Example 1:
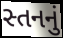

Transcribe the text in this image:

સ્તનનું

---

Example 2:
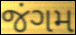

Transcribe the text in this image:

જંગમ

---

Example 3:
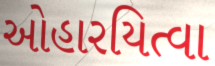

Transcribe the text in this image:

ઓહારયિત્વા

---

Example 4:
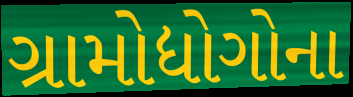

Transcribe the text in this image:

ગ્રામોદ્યોગોના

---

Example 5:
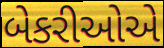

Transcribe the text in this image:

બેકરીઓએ